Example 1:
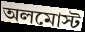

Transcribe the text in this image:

অলমোস্ট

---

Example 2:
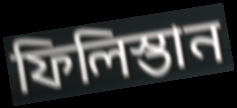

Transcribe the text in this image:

ফিলিস্তান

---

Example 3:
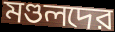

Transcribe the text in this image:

মণ্ডলদের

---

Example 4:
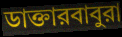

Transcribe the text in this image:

ডাক্তারবাবুরা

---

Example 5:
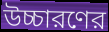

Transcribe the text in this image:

উচ্চারণের